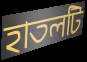
হাতলটি